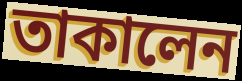
তাকালেন